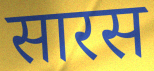
सारस